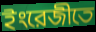
ইংরেজীতে